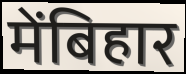
मेंबिहार